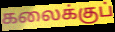
கலைக்குப்